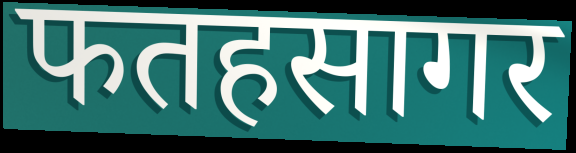
फतहसागर